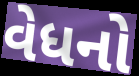
વેધનો